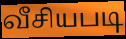
வீசியபடி